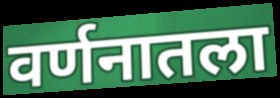
वर्णनातला